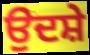
ਉਦਸ਼ੇ